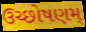
ઉચ્છોષણમ્